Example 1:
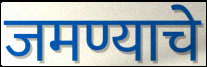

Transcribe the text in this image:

जमण्याचे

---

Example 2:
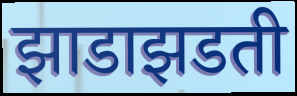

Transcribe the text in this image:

झाडाझडती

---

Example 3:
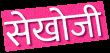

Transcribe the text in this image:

सेखोजी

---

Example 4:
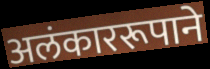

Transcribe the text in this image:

अलंकाररूपाने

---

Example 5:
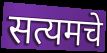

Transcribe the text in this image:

सत्यमचे